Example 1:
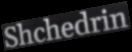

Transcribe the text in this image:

Shchedrin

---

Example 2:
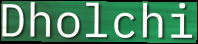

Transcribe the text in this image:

Dholchi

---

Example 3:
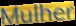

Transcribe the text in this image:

Mulher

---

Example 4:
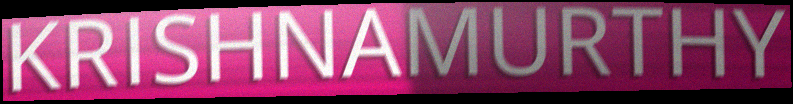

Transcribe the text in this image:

KRISHNAMURTHY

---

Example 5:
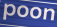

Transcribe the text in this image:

poon